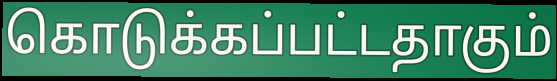
கொடுக்கப்பட்டதாகும்